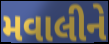
મવાલીને